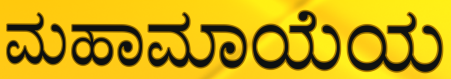
ಮಹಾಮಾಯೆಯ